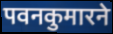
पवनकुमारने